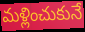
మళ్లించుకునే